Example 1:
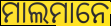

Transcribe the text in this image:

ମାଲମାନେ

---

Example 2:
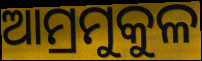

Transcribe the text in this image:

ଆମ୍ରମୁକୁଳ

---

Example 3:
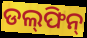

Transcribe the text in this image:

ଡଲ୍‍ଫିନ୍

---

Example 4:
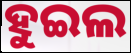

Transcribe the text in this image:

ହୁଇଲ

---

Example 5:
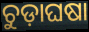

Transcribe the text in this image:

ଚୁଡ଼ାଘଷା